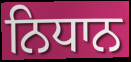
ਨਿਧਾਨ